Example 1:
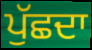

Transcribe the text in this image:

ਪੁੱਛਦਾ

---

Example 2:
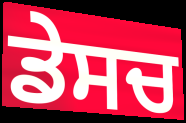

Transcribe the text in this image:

ਡੇਸਚ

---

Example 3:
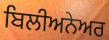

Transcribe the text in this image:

ਬਿਲੀਅਨੇਅਰ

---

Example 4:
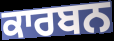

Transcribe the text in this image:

ਕਾਰਬਨ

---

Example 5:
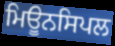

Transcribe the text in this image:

ਮਿਊਨਸਿਪਲ